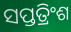
ସପ୍ତତ୍ରିଂଶ